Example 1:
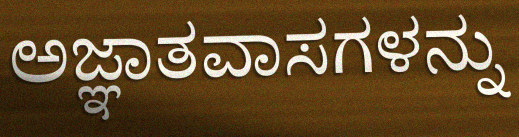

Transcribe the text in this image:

ಅಜ್ಞಾತವಾಸಗಳನ್ನು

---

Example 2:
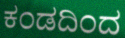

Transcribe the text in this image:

ಕಂಡದಿಂದ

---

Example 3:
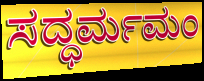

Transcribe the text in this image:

ಸದ್ಧರ್ಮಮಂ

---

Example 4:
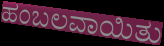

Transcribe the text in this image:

ಹಂಬಲವಾಯಿತು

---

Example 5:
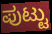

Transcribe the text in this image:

ಪುಟ್ಟು